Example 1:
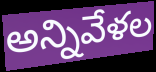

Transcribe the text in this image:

అన్నివేళల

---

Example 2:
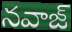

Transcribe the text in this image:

నవాజ్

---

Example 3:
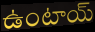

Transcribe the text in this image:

ఉంటాయ్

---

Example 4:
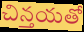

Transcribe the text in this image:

చిన్తయతో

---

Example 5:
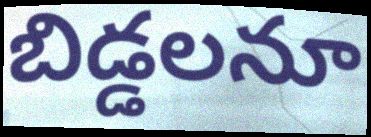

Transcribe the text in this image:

బిడ్డలనూ